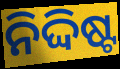
ନିଦ୍ଦିଷ୍ଟ